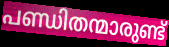
പണ്ഡിതന്മാരുണ്ട്